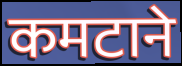
कमटाने